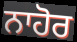
ਨਾਹੋਰ